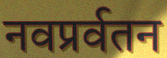
नवप्रर्वतन